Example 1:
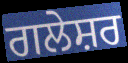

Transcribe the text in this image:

ਗਲੇਸ਼ਰ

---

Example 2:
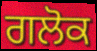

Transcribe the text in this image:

ਗਲੋਕ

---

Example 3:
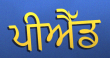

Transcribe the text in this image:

ਪੀਐੱਡ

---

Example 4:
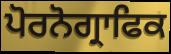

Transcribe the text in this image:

ਪੋਰਨੋਗ੍ਰਾਫਿਕ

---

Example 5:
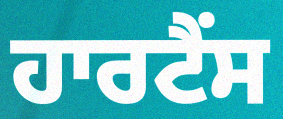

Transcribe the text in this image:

ਹਾਰਟੈਂਸ